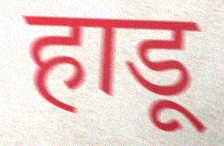
हाडू